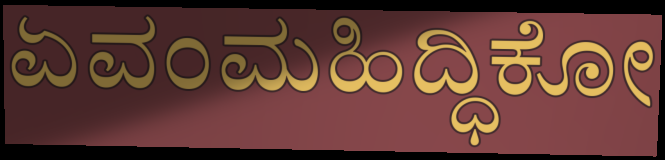
ಏವಂಮಹಿದ್ಧಿಕೋ